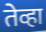
तेव्हा